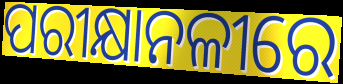
ପରୀକ୍ଷାନଳୀରେ